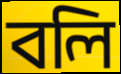
বলি